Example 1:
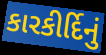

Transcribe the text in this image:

કારકીર્દિનું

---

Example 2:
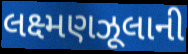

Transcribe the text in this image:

લક્ષ્મણઝૂલાની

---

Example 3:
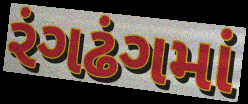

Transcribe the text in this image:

રંગઢંગમાં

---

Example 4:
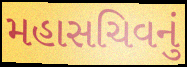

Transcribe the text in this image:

મહાસચિવનું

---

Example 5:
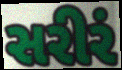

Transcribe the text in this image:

સરીરં